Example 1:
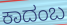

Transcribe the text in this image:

ಕಾದಂಬ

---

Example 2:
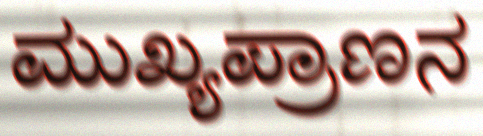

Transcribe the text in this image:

ಮುಖ್ಯಪ್ರಾಣನ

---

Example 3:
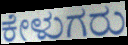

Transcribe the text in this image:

ಕೇಳುಗರು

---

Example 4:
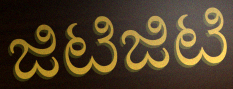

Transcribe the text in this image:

ಜಿಟಿಜಿಟಿ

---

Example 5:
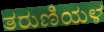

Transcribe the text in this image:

ತರುಣಿಯಳ